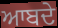
ਆਬਦੇ